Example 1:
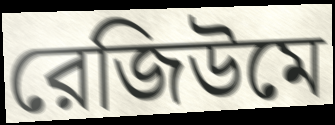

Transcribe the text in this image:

রেজিউমে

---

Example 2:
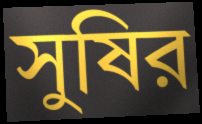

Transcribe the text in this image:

সুষির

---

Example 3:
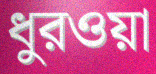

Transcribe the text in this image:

ধুরওয়া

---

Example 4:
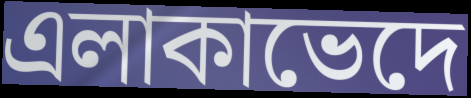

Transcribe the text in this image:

এলাকাভেদে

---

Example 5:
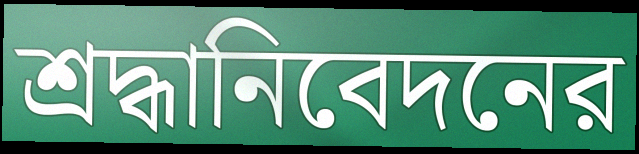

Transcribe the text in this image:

শ্রদ্ধানিবেদনের